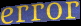
error